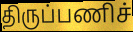
திருப்பணிச்